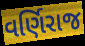
વર્ણિરાજ